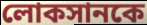
লোকসানকে